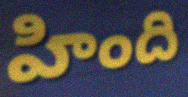
హింది